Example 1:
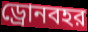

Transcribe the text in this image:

ড্রোনবহর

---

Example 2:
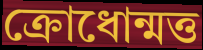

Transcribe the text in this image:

ক্রোধোন্মত্ত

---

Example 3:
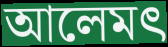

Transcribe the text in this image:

আলেমৎ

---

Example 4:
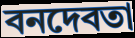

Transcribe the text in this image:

বনদেবতা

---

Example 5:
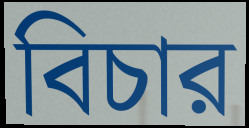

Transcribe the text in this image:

বিচার